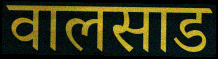
वालसाड